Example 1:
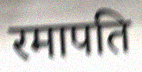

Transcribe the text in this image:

रमापति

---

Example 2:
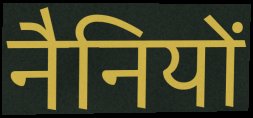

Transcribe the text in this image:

नैनियों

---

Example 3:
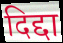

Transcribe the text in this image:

दिद्दा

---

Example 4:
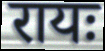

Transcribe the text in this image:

रायः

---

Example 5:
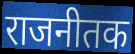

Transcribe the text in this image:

राजनीतक